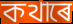
কথাৰে